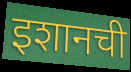
इशानची